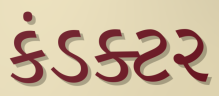
કંડક્ટર